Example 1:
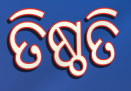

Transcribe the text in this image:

ତିଷ୍ଠତି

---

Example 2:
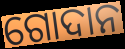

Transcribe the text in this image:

ଗୋଦାନ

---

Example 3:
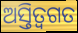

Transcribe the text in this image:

ଅସ୍ତିତ୍ବଗତ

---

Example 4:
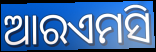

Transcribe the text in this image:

ଆରଏମସି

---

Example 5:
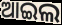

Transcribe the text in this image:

ଆଇଲ